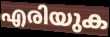
എരിയുക